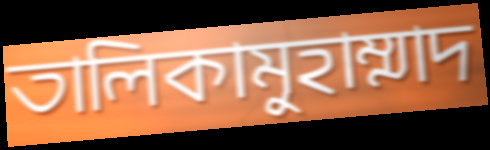
তালিকামুহাম্মাদ